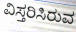
ವಿಸ್ತರಿಸಿರುವ